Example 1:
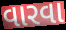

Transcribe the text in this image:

વારવા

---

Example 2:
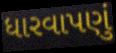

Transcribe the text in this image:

ધારવાપણું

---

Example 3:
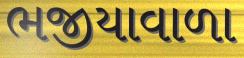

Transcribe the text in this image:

ભજીયાવાળા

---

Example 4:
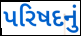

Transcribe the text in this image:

પરિષદનું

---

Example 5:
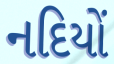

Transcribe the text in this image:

નદિયોં